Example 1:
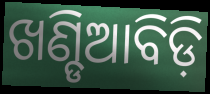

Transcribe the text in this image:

ଖଣ୍ଡିଆବିଡ଼ି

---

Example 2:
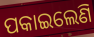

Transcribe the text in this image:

ପକାଇଲେଣି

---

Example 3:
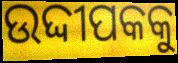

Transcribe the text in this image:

ଉଦ୍ଦୀପକକୁ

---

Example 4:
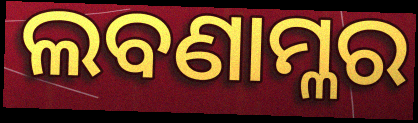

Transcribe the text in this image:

ଲବଣାମ୍ଳର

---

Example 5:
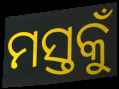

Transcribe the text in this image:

ମସ୍ତକୁଁ